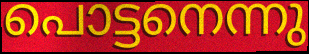
പൊട്ടനെന്നു